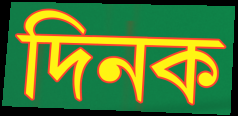
দিনক